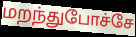
மறந்துபோச்சே